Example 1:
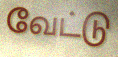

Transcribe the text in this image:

வேட்டு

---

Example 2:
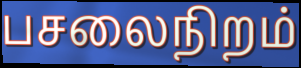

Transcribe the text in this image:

பசலைநிறம்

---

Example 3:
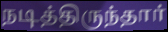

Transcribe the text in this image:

நடித்திருந்தார்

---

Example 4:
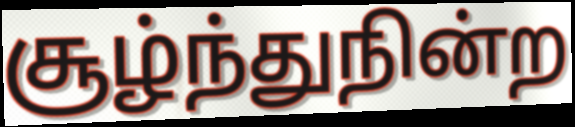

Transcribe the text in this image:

சூழ்ந்துநின்ற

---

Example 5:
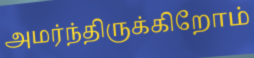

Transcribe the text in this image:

அமர்ந்திருக்கிறோம்